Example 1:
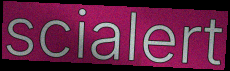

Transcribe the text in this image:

scialert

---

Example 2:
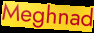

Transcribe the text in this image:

Meghnad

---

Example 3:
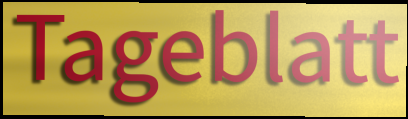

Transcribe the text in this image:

Tageblatt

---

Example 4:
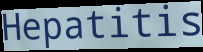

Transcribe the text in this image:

Hepatitis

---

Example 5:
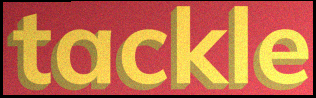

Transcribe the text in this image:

tackle